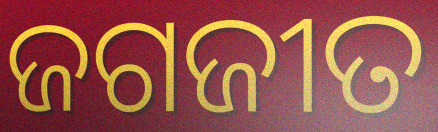
ଜଗଜୀତ